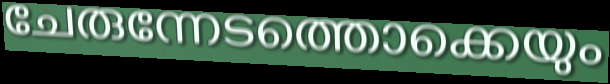
ചേരുന്നേടത്തൊക്കെയും